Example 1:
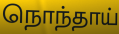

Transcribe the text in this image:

நொந்தாய்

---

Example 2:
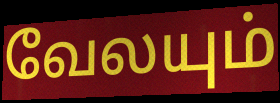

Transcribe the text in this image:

வேலயும்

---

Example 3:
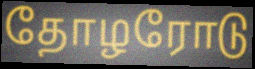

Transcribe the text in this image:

தோழரோடு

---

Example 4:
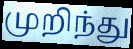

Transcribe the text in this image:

முறிந்து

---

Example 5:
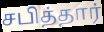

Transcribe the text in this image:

சபித்தார்